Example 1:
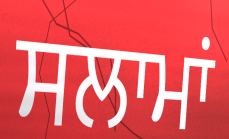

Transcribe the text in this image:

ਸਲਾਮਾਂ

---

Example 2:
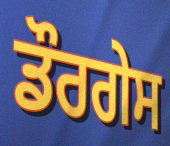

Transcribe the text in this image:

ਡੌਰਗੇਸ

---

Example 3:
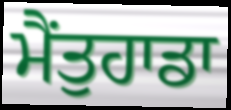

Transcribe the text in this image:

ਮੈਂਤੁਹਾਡਾ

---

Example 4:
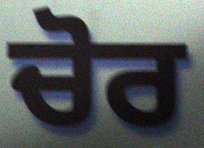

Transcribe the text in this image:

ਚੋਰ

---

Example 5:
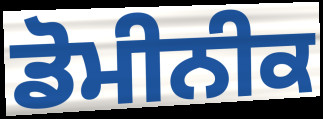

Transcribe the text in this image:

ਡੋਮੀਨੀਕ